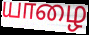
யாழை